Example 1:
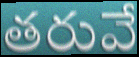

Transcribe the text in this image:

తరువే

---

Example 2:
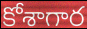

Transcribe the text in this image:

కోశాగార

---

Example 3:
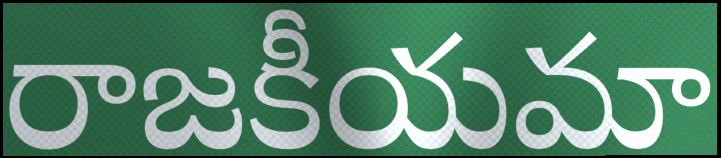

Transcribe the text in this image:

రాజకీయమా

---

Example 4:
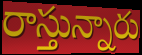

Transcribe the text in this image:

రాస్తున్నారు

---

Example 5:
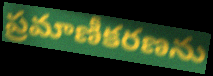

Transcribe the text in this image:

ప్రమాణీకరణను